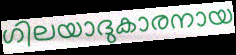
ഗിലയാദുകാരനായ